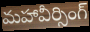
మహావీర్సింగ్